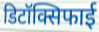
डिटॉक्सिफाई